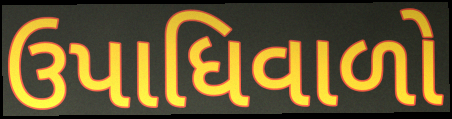
ઉપાધિવાળો